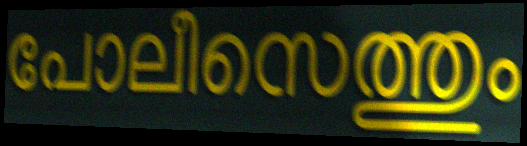
പോലീസെത്തും